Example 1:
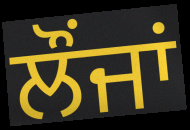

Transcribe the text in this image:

ਲੌਂਜਾਂ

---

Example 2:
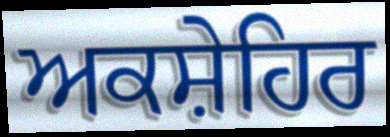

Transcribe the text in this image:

ਅਕਸ਼ੇਹਿਰ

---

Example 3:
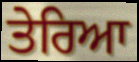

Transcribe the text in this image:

ਤੇਰਿਆ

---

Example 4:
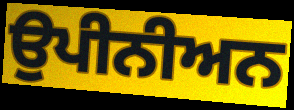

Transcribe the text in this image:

ਉਪੀਨੀਅਨ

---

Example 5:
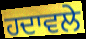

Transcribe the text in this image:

ਹਦਾਵਲੇ